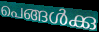
പെങ്ങൾക്കു